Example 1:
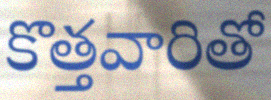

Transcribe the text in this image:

కొత్తవారితో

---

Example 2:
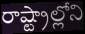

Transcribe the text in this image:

రాష్ట్రాల్లోని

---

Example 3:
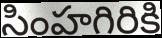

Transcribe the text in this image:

సింహగిరికి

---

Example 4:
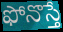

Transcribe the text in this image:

ఫోనొస్తే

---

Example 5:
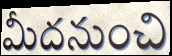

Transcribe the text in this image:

మీదనుంచి